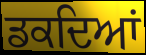
ਡਕਦਿਆਂ